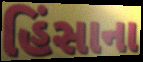
હિંસાના